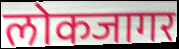
लोकजागर